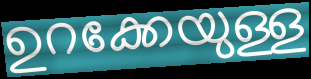
ഉറക്കേയുള്ള